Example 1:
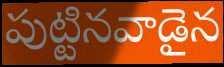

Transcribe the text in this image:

పుట్టినవాడైన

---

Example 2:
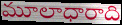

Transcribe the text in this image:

మూలాధారాది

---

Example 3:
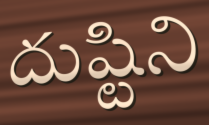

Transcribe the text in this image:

దుష్టిని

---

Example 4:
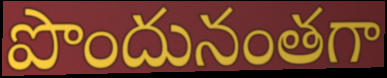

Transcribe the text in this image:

పొందునంతగా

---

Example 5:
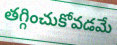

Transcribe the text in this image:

తగ్గించుకోవడమే